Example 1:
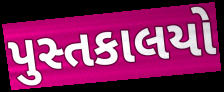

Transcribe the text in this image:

પુસ્તકાલયો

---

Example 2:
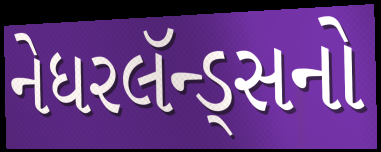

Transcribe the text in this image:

નેધરલૅન્ડ્સનો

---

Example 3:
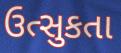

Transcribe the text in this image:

ઉત્સુકતા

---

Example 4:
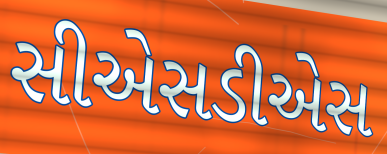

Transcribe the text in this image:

સીએસડીએસ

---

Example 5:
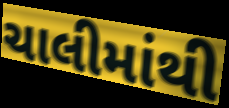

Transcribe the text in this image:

ચાલીમાંથી